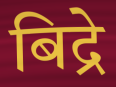
बिद्रे